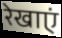
रेखाएं